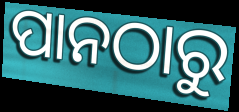
ପାନଠାରୁ